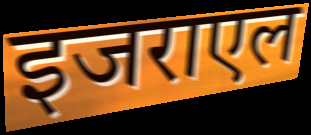
इजराएल